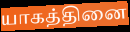
யாகத்தினை